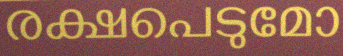
രക്ഷപെടുമോ